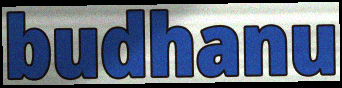
budhanu